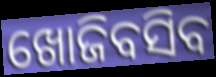
ଖୋଜିବସିବ